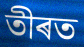
তীৰত